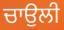
ਚਾਉਲੀ